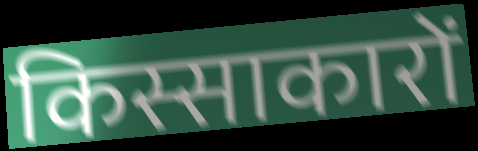
किस्साकारों